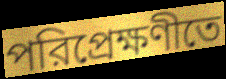
পরিপ্রেক্ষণীতে